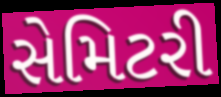
સેમિટરી